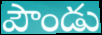
పౌండు